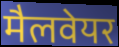
मैलवेयर